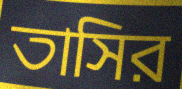
তাসির